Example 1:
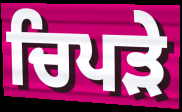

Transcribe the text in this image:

ਚਿਪੜੇ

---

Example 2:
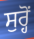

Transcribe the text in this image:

ਸੁਰ੍ਹੋਂ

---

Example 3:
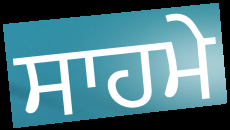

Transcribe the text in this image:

ਸਾਹਮੇ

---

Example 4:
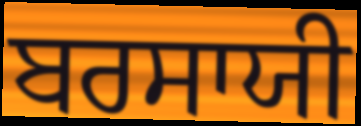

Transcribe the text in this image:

ਬਰਸਾਯੀ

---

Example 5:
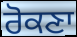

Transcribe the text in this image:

ਰੋਕਣਾ